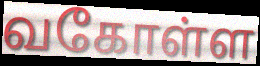
வகோள்ள